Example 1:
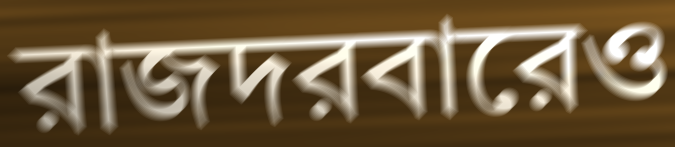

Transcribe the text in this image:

রাজদরবারেও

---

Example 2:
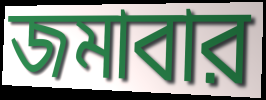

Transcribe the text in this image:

জমাবার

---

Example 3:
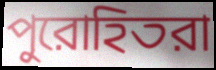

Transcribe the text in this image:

পুরোহিতরা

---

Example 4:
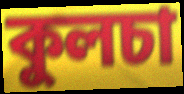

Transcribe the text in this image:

কুলচা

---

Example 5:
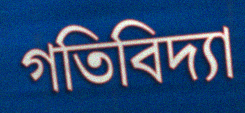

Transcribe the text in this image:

গতিবিদ্যা